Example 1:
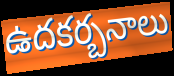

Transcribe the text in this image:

ఉదకర్బనాలు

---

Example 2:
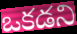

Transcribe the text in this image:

ఒకడని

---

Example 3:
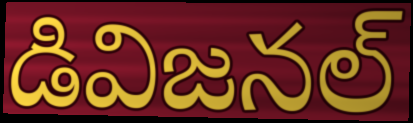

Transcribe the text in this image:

డివిజనల్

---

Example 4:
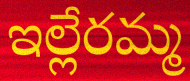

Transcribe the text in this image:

ఇల్లేరమ్మ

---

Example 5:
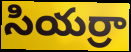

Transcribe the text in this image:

సియర్రా